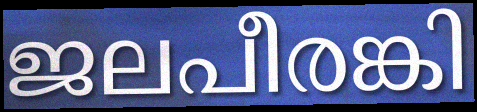
ജലപീരങ്കി